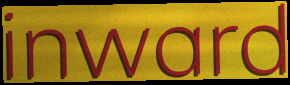
inward